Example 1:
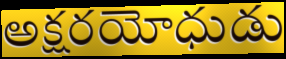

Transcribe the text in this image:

అక్షరయోధుడు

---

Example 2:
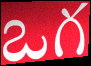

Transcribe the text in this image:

ఒగ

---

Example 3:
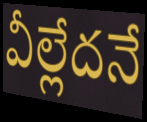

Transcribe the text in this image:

వీల్లేదనే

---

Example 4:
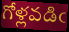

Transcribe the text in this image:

గోళ్లవడిఁ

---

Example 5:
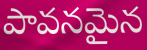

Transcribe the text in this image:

పావనమైన